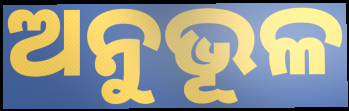
ଅନୁଭୂଳ